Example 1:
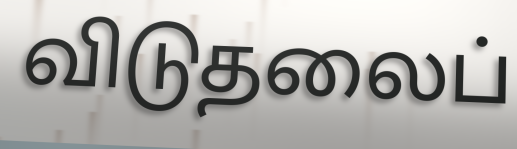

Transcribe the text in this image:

விடுதலைப்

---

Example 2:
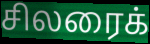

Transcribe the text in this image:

சிலரைக்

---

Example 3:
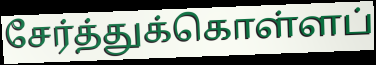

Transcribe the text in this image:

சேர்த்துக்கொள்ளப்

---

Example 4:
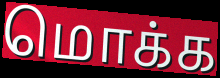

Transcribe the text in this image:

மொக்க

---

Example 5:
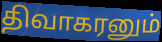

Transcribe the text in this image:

திவாகரனும்